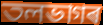
তলভাগৰ